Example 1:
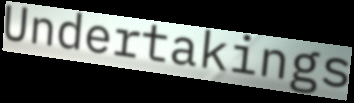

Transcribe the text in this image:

Undertakings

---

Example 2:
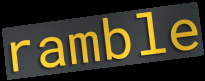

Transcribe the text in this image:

ramble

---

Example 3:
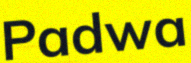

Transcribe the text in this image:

Padwa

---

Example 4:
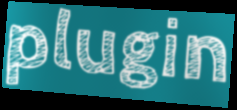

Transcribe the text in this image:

plugin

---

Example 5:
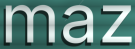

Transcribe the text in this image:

maz